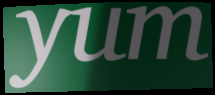
yum